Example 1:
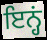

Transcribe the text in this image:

ਇਨ੍ਹਂ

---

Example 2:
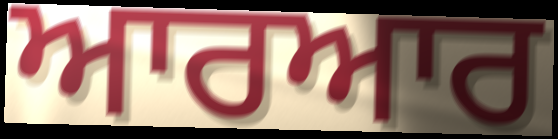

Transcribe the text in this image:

ਆਰਆਰ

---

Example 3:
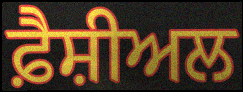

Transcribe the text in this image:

ਫ਼ੈਸ਼ੀਅਲ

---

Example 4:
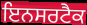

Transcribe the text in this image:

ਇਨਸਰਟੈਕ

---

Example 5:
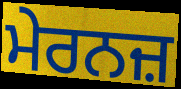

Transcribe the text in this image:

ਮੇਰਨਜ਼